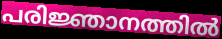
പരിജ്ഞാനത്തിൽ